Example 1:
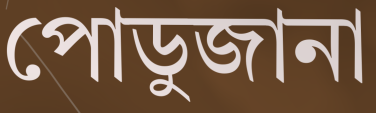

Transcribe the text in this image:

পোডুজানা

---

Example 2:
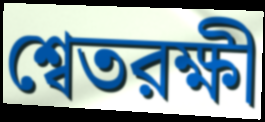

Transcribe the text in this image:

শ্বেতরক্ষী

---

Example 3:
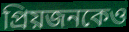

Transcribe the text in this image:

প্রিয়জনকেও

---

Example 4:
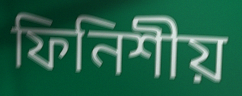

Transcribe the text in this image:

ফিনিশীয়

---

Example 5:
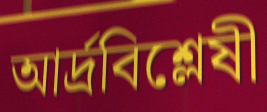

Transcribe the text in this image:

আর্দ্রবিশ্লেষী